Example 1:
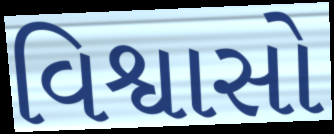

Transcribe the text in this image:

વિશ્વાસો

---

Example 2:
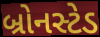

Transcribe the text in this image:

બ્રોનસ્ટેડ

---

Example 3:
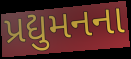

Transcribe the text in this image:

પ્રદ્યુમનના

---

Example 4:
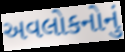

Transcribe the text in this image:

અવલોકનોનું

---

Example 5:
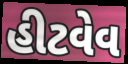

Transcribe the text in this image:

હીટવેવ